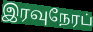
இரவுநேரப்